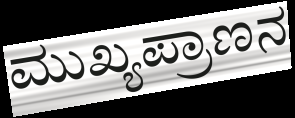
ಮುಖ್ಯಪ್ರಾಣನ